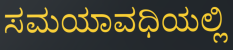
ಸಮಯಾವಧಿಯಲ್ಲಿ